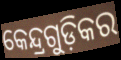
କେନ୍ଦ୍ରଗୁଡ଼ିକର